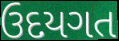
ઉદયગત